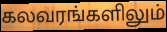
கலவரங்களிலும்